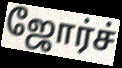
ஜோர்ச்